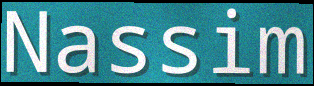
Nassim